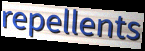
repellents